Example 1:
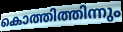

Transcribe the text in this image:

കൊത്തിത്തിന്നും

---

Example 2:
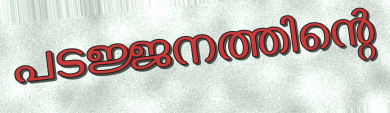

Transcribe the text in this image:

പടജ്ജനത്തിന്റെ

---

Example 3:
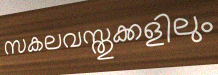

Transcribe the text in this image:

സകലവസ്തുക്കളിലും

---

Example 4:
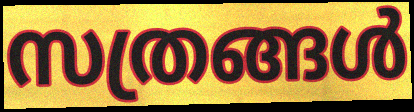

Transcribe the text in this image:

സത്രങ്ങൾ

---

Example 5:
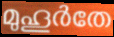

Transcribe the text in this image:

മുഹൂർതേ